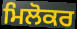
ਮਿਲੋਕਰ